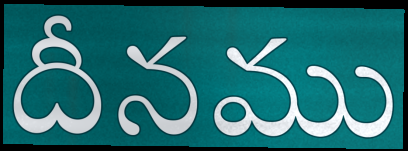
దీనము